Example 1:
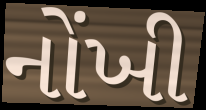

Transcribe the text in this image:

નોંખી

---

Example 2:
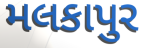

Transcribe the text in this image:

મલકાપુર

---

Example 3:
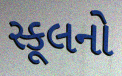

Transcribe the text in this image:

સ્કૂલનો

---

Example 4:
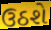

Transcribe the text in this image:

ઉઠશે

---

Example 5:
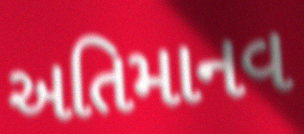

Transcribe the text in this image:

અતિમાનવ